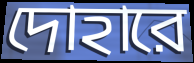
দোহারে